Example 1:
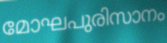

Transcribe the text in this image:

മോഘപുരിസാനം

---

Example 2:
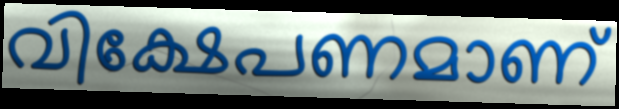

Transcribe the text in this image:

വിക്ഷേപണമാണ്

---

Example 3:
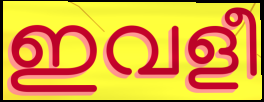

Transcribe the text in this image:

ഇവളീ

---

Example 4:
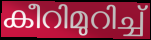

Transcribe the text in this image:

കീറിമുറിച്ച്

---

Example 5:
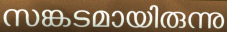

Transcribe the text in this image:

സങ്കടമായിരുന്നു